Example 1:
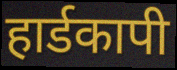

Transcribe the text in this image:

हार्डकापी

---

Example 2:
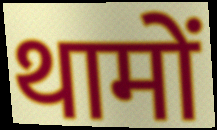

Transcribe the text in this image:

थामों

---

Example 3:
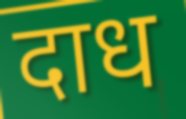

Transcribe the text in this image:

दाध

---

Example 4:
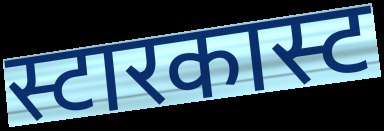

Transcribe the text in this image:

स्टारकास्ट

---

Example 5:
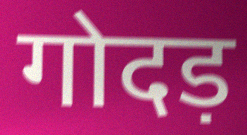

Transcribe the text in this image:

गोदड़